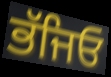
ਭੱਜਿਓ